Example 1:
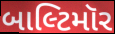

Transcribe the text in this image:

બાલ્ટિમૉર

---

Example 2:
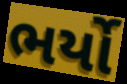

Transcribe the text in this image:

ભર્યો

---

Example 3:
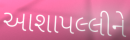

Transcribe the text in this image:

આશાપલ્લીને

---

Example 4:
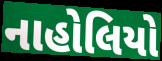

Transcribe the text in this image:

નાહોલિયો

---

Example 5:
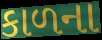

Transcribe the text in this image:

કાળના